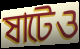
ষাটেও